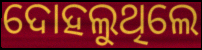
ଦୋହଲୁଥିଲେ